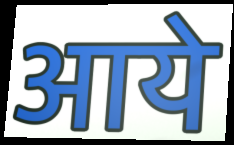
आये